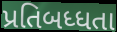
પ્રતિબધ્ધતા